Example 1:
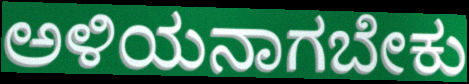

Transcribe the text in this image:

ಅಳಿಯನಾಗಬೇಕು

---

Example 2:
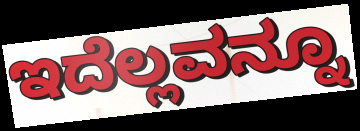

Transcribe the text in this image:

ಇದೆಲ್ಲವನ್ನೂ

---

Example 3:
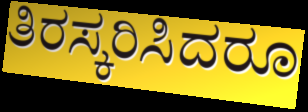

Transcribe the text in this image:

ತಿರಸ್ಕರಿಸಿದರೂ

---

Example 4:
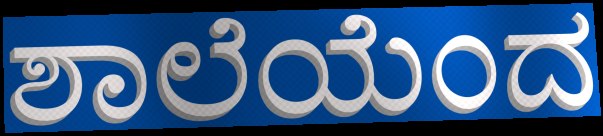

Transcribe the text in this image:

ಶಾಲೆಯೆಂದ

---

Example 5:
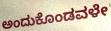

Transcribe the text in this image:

ಅಂದುಕೊಂಡವಳೇ